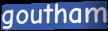
goutham